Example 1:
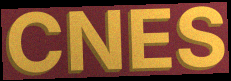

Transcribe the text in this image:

CNES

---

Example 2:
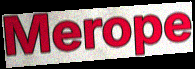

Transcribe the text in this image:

Merope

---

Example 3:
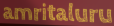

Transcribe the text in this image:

amritaluru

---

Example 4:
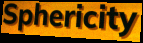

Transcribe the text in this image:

Sphericity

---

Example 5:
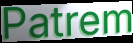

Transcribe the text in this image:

Patrem